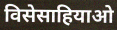
विसेसाहियाओ